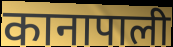
कानापाली